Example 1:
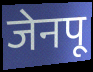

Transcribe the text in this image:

जेनपू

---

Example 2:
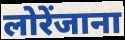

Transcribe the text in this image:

लोरेंजाना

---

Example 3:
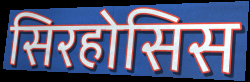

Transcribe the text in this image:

सिरहोसिस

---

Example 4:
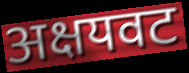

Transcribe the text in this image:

अक्षयवट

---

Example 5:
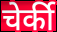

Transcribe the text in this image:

चेर्की